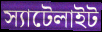
স্যাটেলাইট